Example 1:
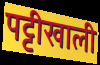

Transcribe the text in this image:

पट्टीखाली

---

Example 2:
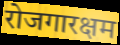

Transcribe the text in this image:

रोजगारक्षम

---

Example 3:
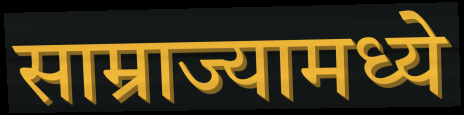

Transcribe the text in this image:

साम्राज्यामध्ये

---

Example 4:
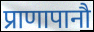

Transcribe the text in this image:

प्राणापानौ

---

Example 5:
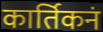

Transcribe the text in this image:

कार्तिकनं